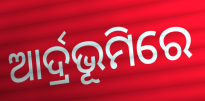
ଆର୍ଦ୍ରଭୂମିରେ